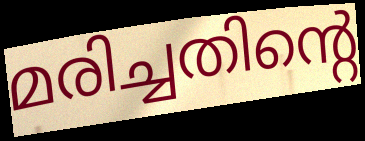
മരിച്ചതിന്റെ